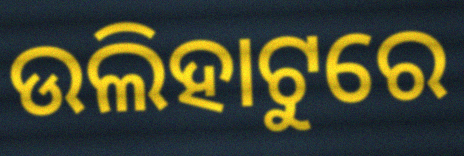
ଉଲିହାଟୁରେ